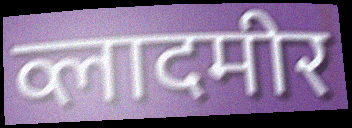
व्लादमीर